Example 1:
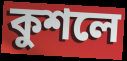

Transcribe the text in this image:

কুশলে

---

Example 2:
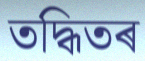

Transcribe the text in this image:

তদ্ধিতৰ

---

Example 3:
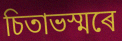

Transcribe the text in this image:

চিতাভস্মৰে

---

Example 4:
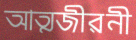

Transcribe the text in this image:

আত্মজীৱনী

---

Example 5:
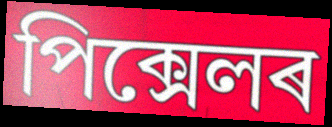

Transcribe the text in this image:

পিক্সেলৰ